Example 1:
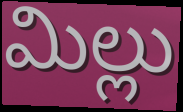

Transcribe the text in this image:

మిల్లు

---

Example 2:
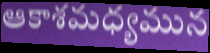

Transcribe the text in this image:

ఆకాశమధ్యమున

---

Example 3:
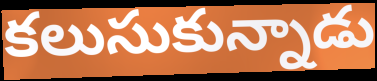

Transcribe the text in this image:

కలుసుకున్నాడు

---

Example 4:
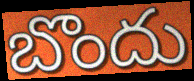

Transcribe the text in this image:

బొందు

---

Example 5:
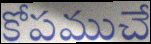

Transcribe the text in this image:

కోపముచే